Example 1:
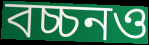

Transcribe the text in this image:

বচ্চনও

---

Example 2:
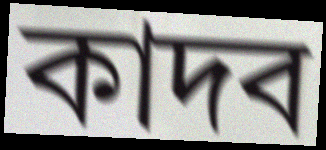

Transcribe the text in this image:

কাদব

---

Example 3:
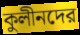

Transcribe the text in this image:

কুলীনদের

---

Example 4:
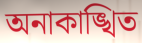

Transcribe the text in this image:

অনাকাঙ্খিত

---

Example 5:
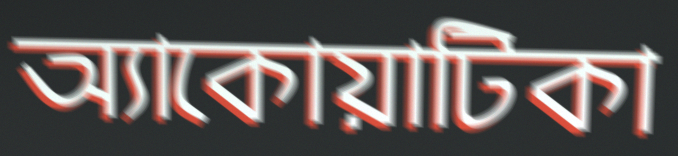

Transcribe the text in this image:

অ্যাকোয়াটিকা